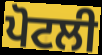
ਪੋਟਲੀ